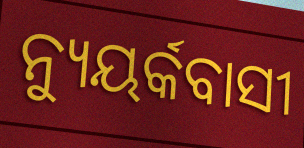
ନ୍ୟୁୟର୍କବାସୀ